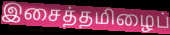
இசைத்தமிழைப்